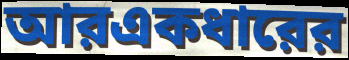
আরএকধারের